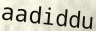
aadiddu